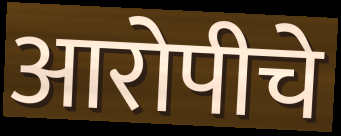
आरोपीचे